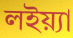
লইয়্যা